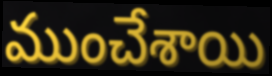
ముంచేశాయి